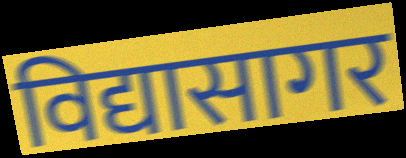
विद्यासागर